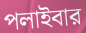
পলাইবার